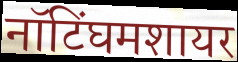
नॉटिंघमशायर